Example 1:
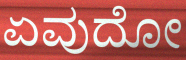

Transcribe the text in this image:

ಏವುದೋ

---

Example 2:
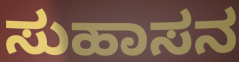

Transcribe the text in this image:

ಸುಹಾಸನ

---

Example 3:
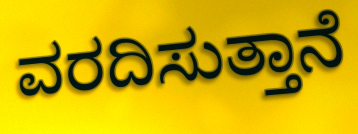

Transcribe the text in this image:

ವರದಿಸುತ್ತಾನೆ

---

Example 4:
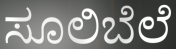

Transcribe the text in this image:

ಸೂಲಿಬೆಲೆ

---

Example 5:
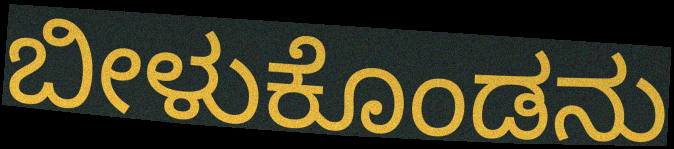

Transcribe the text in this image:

ಬೀಳುಕೊಂಡನು